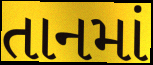
તાનમાં